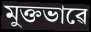
মুক্তভাৱে